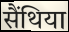
सैंथिया